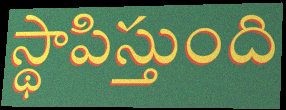
స్థాపిస్తుంది